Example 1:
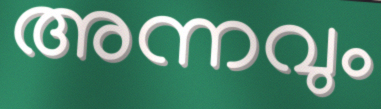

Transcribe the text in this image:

അന്നവും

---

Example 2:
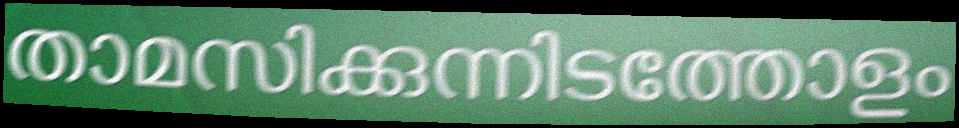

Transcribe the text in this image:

താമസിക്കുന്നിടത്തോളം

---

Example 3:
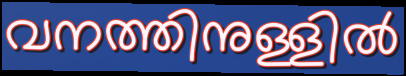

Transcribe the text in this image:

വനത്തിനുള്ളിൽ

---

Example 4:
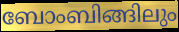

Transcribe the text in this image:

ബോംബിങ്ങിലും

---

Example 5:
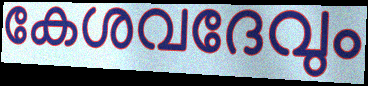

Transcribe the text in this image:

കേശവദേവും